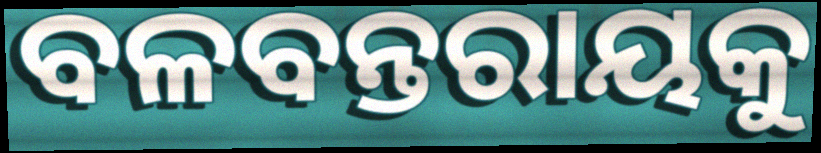
ବଳବନ୍ତରାୟକୁ